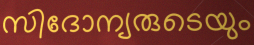
സിദോന്യരുടെയും